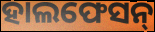
ହାଲଫେସନ୍